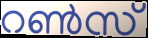
റൺസ്